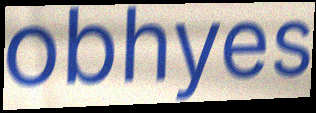
obhyes